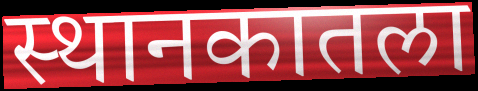
स्थानकातला